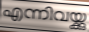
എന്നിവയ്ക്കു